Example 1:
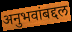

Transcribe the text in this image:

अनुभवांबद्दल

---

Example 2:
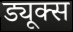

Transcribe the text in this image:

ड्यूक्स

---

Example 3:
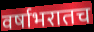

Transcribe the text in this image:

वर्षाभरातच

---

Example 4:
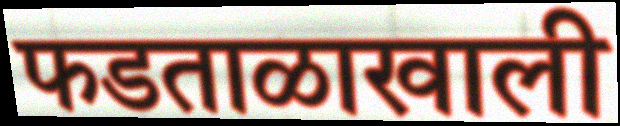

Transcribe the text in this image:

फडताळाखाली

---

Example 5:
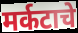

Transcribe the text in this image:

मर्कटाचे